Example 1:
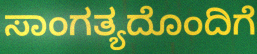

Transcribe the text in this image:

ಸಾಂಗತ್ಯದೊಂದಿಗೆ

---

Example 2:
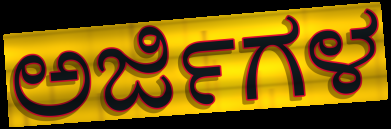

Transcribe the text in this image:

ಅರ್ಜಿಗಳ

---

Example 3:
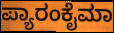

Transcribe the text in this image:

ಪ್ಯಾರಂಕೈಮಾ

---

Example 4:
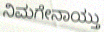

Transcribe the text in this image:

ನಿಮಗೇನಾಯ್ತು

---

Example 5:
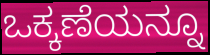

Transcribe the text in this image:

ಒಕ್ಕಣೆಯನ್ನೂ